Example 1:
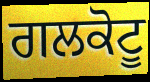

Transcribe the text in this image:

ਗਲਕੋਟੂ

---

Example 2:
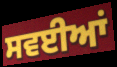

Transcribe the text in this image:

ਸਵਈਆਂ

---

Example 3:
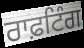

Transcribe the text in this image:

ਰਾਫ਼ਟਿੰਗ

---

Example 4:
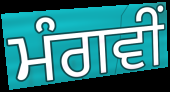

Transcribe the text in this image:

ਮੰਗਵੀਂ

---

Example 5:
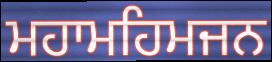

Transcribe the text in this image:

ਮਹਾਮਹਿਮਜਨ